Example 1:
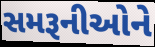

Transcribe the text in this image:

સમરૂનીઓને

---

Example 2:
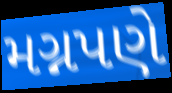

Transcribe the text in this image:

મગ્નપણે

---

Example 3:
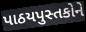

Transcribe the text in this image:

પાઠયપુસ્તકોને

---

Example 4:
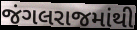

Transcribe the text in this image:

જંગલરાજમાંથી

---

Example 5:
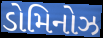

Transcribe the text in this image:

ડોમિનોઝ